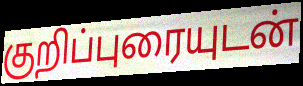
குறிப்புரையுடன்